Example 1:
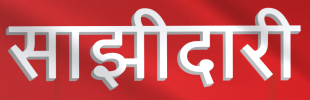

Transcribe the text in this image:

साझीदारी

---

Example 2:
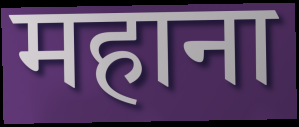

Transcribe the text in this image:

महाना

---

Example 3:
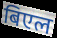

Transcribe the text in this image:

बिएल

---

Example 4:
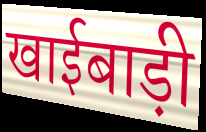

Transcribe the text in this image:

खाईबाड़ी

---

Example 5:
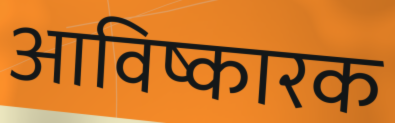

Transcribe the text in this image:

आविष्कारक